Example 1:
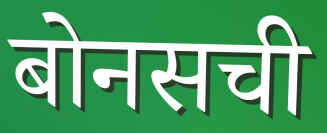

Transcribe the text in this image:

बोनसची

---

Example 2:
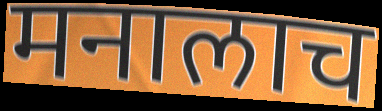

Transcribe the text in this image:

मनालाच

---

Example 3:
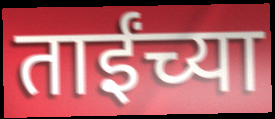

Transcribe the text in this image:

ताईंच्या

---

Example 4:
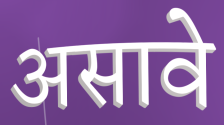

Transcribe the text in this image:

असावे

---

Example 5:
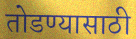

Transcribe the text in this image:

तोडण्यासाठी